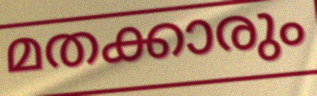
മതക്കാരും